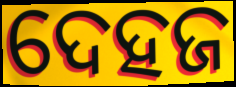
ଦେହଜ